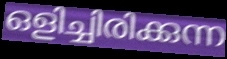
ഒളിച്ചിരിക്കുന്ന